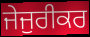
ਜੇਜੁਰੀਕਰ